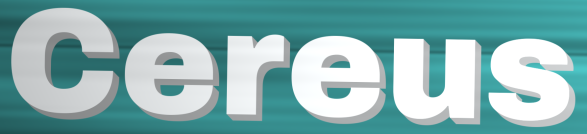
Cereus